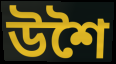
উশৈ